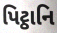
પિટ્ઠાનિ